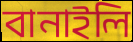
বানাইলি